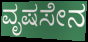
ವೃಷಸೇನ